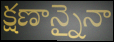
క్షణాన్నైనా